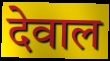
देवाल